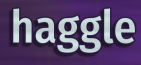
haggle